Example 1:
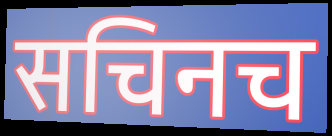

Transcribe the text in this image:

सचिनच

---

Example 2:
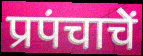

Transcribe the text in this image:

प्रपंचाचें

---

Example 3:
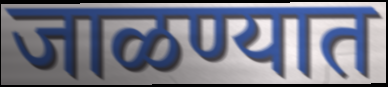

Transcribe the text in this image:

जाळण्यात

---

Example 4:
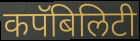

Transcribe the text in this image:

कपॅबिलिटी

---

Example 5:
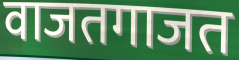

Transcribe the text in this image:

वाजतगाजत